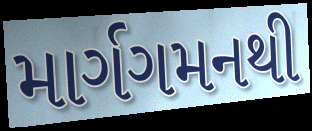
માર્ગગમનથી